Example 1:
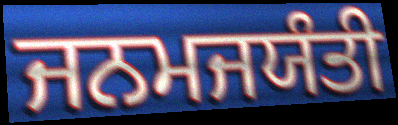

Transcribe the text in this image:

ਜਨਮਜਯੰਤੀ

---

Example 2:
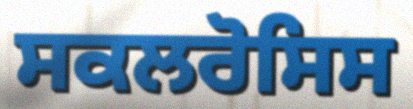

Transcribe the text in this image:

ਸਕਲਰੋਸਿਸ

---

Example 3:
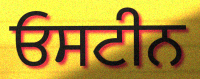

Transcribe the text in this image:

ਓਸਟੀਨ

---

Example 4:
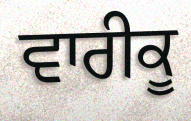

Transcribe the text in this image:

ਵਾਰੀਕੂ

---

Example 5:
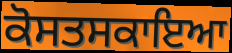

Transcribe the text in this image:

ਕੋਸਤਸਕਾਇਆ